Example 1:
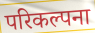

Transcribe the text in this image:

परिकल्पना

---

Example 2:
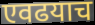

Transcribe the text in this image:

एवढयाच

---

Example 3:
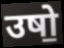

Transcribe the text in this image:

उषो॒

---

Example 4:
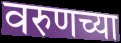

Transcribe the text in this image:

वरुणच्या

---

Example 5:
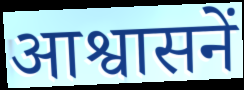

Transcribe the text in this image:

आश्वासनें